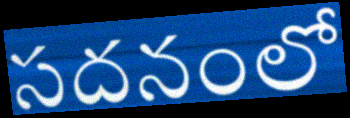
సదనంలో